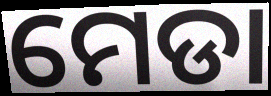
ମେଡା